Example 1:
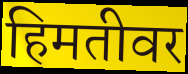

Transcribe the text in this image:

हिमतीवर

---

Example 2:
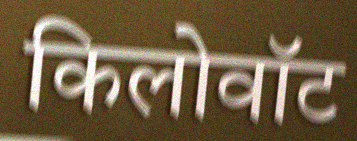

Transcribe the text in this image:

किलोवॉट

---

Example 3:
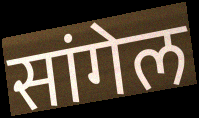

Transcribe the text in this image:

सांगेल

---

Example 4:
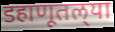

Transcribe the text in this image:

डहाणूतल्या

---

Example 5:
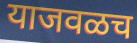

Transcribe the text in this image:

याजवळच